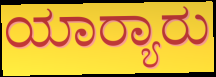
ಯಾರ್‍ಯಾರು